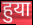
हुया